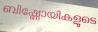
ബിഷ്ണോയികളുടെ